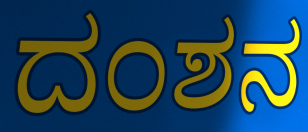
ದಂಶನ